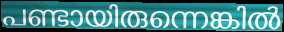
പണ്ടായിരുന്നെങ്കിൽ